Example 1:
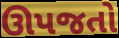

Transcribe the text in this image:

ઊપજતો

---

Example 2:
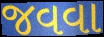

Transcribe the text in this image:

જવવા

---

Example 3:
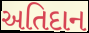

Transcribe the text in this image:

અતિદાન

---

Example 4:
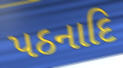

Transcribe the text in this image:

પઠનાદિ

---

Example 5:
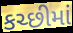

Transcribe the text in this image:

કચ્છીમાં